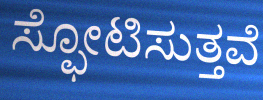
ಸ್ಫೋಟಿಸುತ್ತವೆ